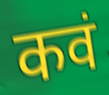
कवं